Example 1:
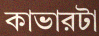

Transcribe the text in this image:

কাভারটা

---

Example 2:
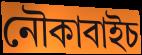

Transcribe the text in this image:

নৌকাবাইচ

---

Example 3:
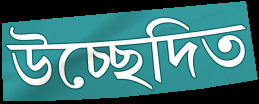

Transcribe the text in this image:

উচ্ছেদিত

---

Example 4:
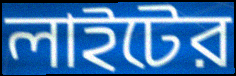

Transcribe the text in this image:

লাইটের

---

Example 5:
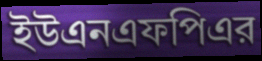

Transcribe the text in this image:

ইউএনএফপিএর